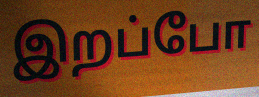
இறப்போ